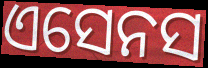
ଏସେନସ